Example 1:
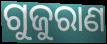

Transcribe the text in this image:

ଗୁଜୁରାଣ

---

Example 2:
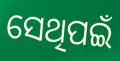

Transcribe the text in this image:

ସେଥିପଇଁ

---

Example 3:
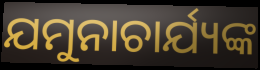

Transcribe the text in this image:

ଯମୁନାଚାର୍ଯ୍ୟଙ୍କ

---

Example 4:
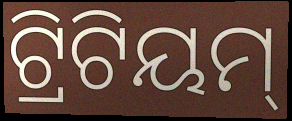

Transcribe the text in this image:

ଟ୍ରିଟିୟମ୍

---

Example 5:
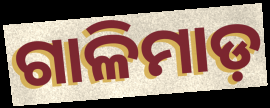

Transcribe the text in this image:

ଗାଳିମାଡ଼